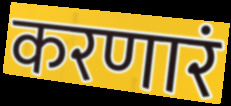
करणारं